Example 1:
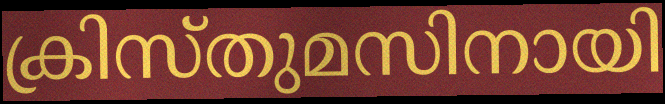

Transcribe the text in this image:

ക്രിസ്തുമസിനായി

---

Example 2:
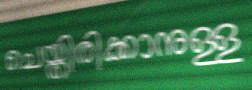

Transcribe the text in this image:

ചെയ്തിരിക്കാനുള്ള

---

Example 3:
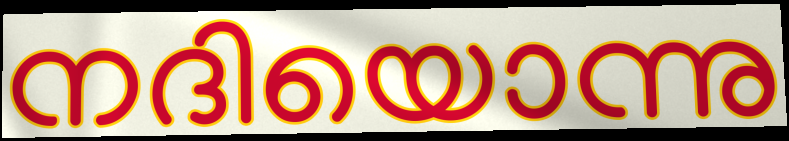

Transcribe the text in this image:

നദിയൊന്നു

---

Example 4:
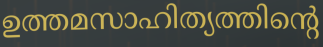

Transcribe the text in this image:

ഉത്തമസാഹിത്യത്തിന്റെ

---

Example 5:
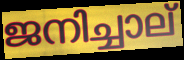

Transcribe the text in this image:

ജനിച്ചാല്